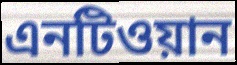
এনটিওয়ান